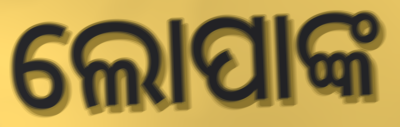
ଲୋପାଙ୍କ